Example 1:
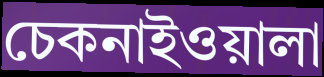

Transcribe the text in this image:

চেকনাইওয়ালা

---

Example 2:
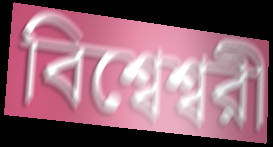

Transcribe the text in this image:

বিশ্বেশ্বরী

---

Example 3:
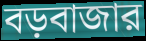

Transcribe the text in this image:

বড়বাজার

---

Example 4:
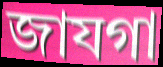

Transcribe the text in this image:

জাযগা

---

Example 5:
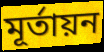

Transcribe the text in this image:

মূর্তায়ন